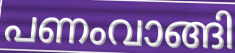
പണംവാങ്ങി